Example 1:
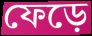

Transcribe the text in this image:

ফেড়ে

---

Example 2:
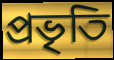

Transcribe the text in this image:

প্রভৃতি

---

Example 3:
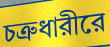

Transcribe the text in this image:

চত্রুধারীরে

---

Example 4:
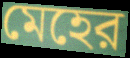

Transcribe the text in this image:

মেহের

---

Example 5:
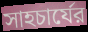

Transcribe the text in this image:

সাহচার্যের